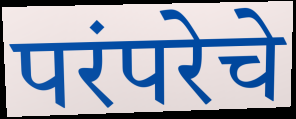
परंपरेचे